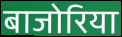
बाजोरिया